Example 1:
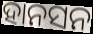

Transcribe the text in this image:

ହାନସନ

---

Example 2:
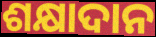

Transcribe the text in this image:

ଶକ୍ଷାଦାନ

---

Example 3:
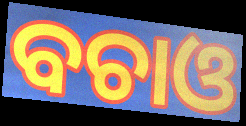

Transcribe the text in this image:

ବଚାଓ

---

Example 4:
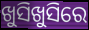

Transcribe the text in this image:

ଖୁସିଖୁସିରେ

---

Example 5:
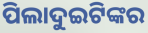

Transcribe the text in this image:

ପିଲାଦୁଇଟିଙ୍କର